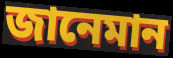
জানেমান